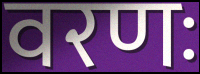
वरणः